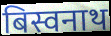
बिस्वनाथ